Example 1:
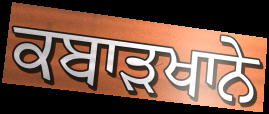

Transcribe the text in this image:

ਕਬਾੜਖਾਨੇ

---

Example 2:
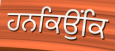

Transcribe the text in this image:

ਹਨਕਿਉਂਕਿ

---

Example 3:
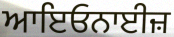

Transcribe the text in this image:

ਆਇਓਨਾਈਜ਼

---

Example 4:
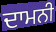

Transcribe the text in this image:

ਦਾਮਨੀ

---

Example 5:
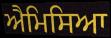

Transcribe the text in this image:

ਐਮਿਸਿਆ